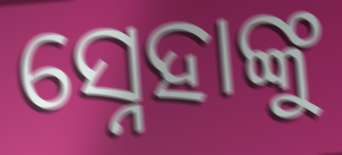
ସ୍ନେହାଙ୍କୁ